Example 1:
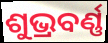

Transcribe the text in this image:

ଶୁଭ୍ରବର୍ଣ୍ଣ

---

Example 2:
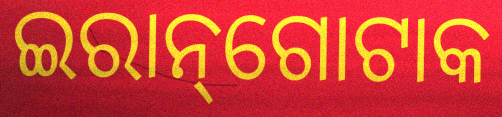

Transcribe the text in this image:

ଇରାନ୍‌ଗୋଟାକ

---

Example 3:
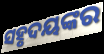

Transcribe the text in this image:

ସହୃଦୟଙ୍କର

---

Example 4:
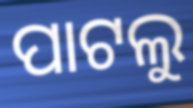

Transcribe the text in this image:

ପାଟଲୁ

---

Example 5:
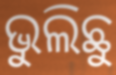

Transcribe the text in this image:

ଭୁଲିଛୁ